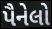
પૈનેલો